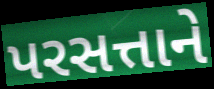
પરસત્તાને